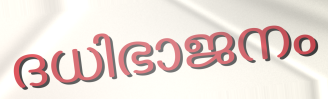
ദധിഭാജനം